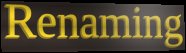
Renaming